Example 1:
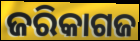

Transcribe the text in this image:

ଜରିକାଗଜ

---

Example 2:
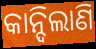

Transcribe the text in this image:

କାନ୍ଦିଲାଣି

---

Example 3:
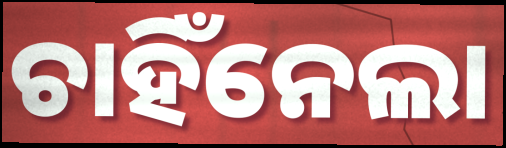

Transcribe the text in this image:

ଚାହିଁନେଲା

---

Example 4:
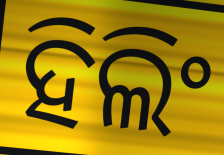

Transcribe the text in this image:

ହିଲିଂ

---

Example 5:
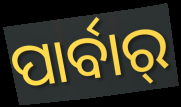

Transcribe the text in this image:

ପାର୍ବାର୍